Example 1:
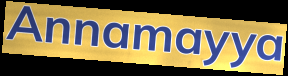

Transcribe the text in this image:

Annamayya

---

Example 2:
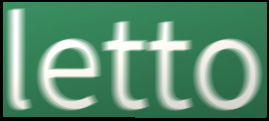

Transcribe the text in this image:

letto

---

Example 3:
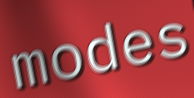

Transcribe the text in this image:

modes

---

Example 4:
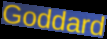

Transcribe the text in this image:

Goddard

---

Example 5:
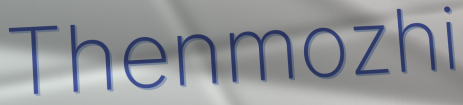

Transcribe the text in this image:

Thenmozhi